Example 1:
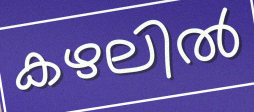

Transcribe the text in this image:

കഴലിൽ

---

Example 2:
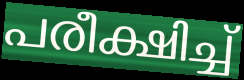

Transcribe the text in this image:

പരീക്ഷിച്ച്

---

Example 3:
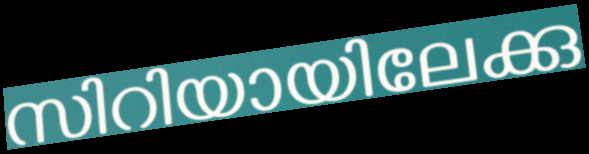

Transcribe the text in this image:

സിറിയായിലേക്കു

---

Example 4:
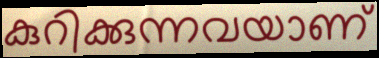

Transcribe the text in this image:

കുറിക്കുന്നവയാണ്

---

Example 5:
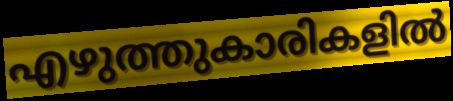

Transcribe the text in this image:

എഴുത്തുകാരികളിൽ